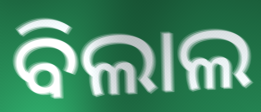
ବିଲାଲ